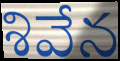
శివేన